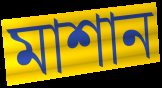
মাশান